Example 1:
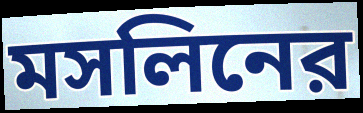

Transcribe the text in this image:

মসলিনের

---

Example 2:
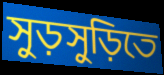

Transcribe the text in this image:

সুড়সুড়িতে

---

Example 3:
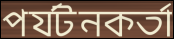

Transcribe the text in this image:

পর্যটনকর্তা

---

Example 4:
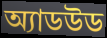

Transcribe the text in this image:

অ্যাডউড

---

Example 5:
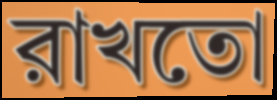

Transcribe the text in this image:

রাখতো